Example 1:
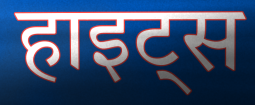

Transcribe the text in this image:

हाइट्स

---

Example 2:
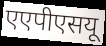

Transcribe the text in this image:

एएपीएसयू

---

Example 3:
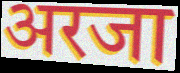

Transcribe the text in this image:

अरजा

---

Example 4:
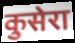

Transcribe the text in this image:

कुसेरा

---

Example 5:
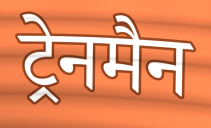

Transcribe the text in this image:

ट्रेनमैन